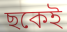
ছকেই